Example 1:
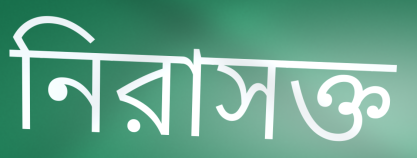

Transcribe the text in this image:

নিরাসক্ত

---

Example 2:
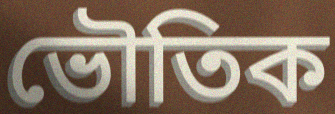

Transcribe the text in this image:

ভৌতিক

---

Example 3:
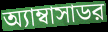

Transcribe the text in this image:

অ্যাম্বাসাডর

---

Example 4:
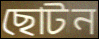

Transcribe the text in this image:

ছোটন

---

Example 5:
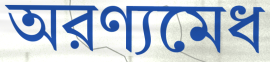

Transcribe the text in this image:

অরণ্যমেধ